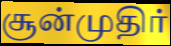
சூன்முதிர்